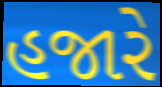
હજારે